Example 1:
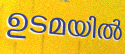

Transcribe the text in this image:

ഉടമയിൽ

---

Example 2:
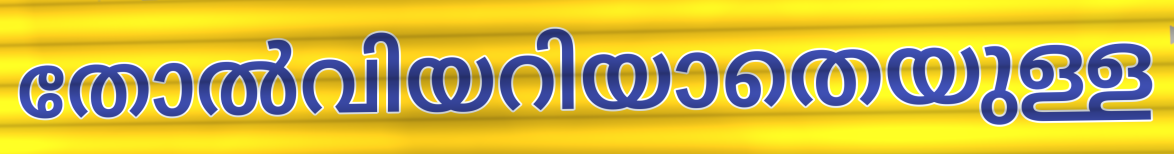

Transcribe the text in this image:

തോൽവിയറിയാതെയുള്ള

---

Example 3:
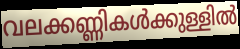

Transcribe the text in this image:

വലക്കണ്ണികൾക്കുള്ളിൽ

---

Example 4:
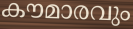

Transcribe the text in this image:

കൗമാരവും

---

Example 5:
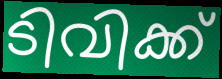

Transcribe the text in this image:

ടിവിക്ക്